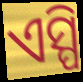
ଏସ୍ପି